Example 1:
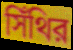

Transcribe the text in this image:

সিঁথির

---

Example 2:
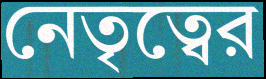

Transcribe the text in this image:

নেতৃত্বের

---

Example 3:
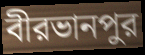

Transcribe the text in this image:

বীরভানপুর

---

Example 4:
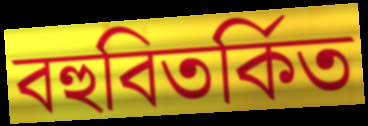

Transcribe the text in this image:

বহুবিতর্কিত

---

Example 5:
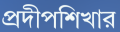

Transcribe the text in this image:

প্রদীপশিখার